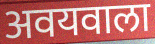
अवयवाला